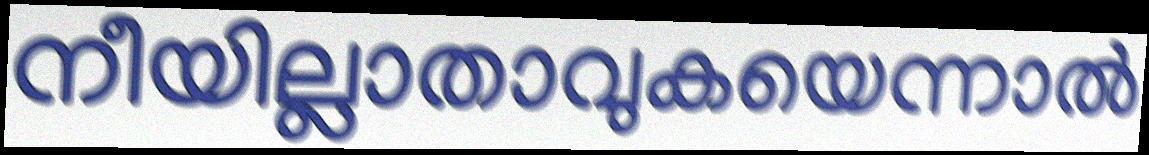
നീയില്ലാതാവുകയെന്നാൽ